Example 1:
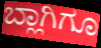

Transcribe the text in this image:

ಬ್ಲಾಗಿಗೂ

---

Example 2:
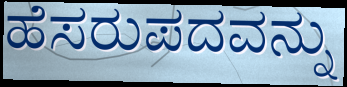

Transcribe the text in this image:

ಹೆಸರುಪದವನ್ನು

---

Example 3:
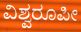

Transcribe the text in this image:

ವಿಶ್ವರೂಪೀ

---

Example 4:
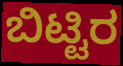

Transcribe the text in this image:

ಬಿಟ್ಟಿರ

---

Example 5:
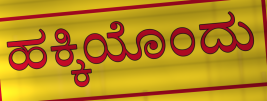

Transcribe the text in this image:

ಹಕ್ಕಿಯೊಂದು